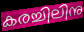
കരച്ചിലിനു